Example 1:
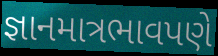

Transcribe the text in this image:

જ્ઞાનમાત્રભાવપણે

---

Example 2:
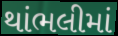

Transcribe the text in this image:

થાંભલીમાં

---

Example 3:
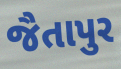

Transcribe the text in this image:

જૈતાપુર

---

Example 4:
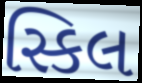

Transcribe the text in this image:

સ્કિલ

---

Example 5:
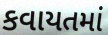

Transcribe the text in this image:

કવાયતમાં